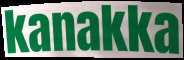
kanakka